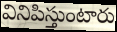
వినిపిస్తుంటారు